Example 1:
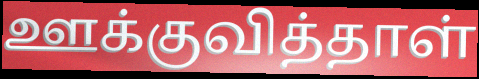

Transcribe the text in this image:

ஊக்குவித்தாள்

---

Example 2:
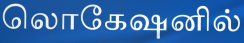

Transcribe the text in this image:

லொகேஷனில்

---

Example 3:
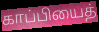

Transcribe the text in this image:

காப்பியைத்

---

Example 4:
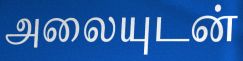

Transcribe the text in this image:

அலையுடன்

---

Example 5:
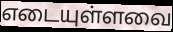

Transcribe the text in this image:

எடையுள்ளவை